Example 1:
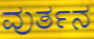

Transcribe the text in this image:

ವುರ್ತನ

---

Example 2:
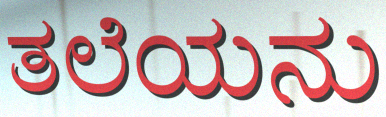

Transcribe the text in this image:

ತಲೆಯನು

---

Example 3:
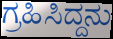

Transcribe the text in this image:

ಗ್ರಹಿಸಿದ್ದನು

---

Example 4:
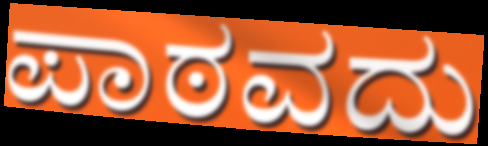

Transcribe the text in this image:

ಪಾಠವದು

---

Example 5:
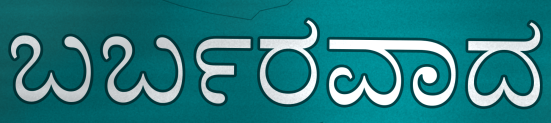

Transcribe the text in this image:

ಬರ್ಬರವಾದ